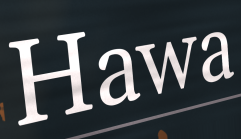
Hawa